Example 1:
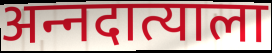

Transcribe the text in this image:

अन्नदात्याला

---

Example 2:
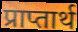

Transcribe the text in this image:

प्राप्तार्थ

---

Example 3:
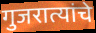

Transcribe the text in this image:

गुजरात्यांचे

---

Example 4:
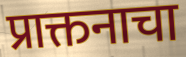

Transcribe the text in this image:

प्राक्तनाचा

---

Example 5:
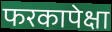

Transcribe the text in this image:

फरकापेक्षा